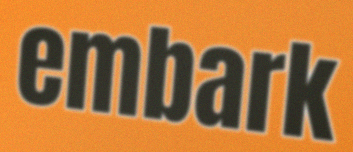
embark